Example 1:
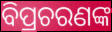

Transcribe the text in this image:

ବିପ୍ରଚରଣଙ୍କ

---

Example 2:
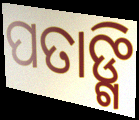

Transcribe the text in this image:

ପତାଙ୍ଗି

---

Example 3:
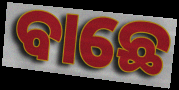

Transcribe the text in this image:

ବାଛେ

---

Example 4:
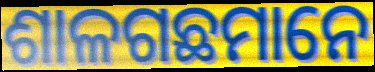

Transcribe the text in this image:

ଶାଳଗଛମାନେ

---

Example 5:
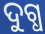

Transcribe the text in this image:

ଦୁଗ୍ଧ